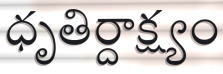
ధృతిర్దాక్ష్యం